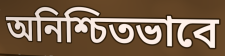
অনিশ্চিতভাবে